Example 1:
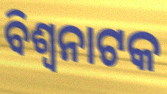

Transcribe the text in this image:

ବିଶ୍ୱନାଟକ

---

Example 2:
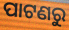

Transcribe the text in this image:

ପାଟଣରୁ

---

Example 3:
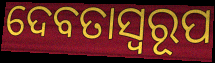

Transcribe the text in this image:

ଦେବତାସ୍ୱରୂପ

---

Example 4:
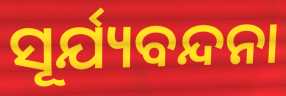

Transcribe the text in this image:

ସୂର୍ଯ୍ୟବନ୍ଦନା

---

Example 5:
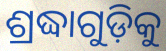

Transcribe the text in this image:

ଶ୍ରଦ୍ଧାଗୁଡ଼ିକୁ